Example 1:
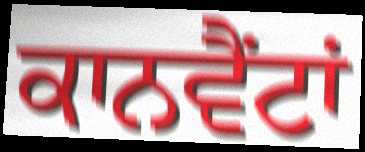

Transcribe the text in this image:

ਕਾਨਵੈਂਟਾਂ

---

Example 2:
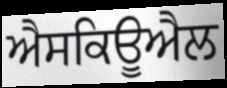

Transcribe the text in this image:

ਐਸਕਿਊਐਲ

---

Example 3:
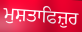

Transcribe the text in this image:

ਮੁਸ਼ਤਾਫਿਜ਼ੁਰ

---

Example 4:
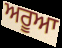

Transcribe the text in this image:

ਅਰੂਆ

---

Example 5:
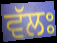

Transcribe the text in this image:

ਵੱਲਃ